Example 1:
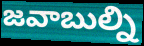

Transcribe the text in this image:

జవాబుల్ని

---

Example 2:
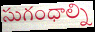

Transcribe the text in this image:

సుగంధాల్ని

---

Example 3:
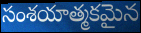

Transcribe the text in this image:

సంశయాత్మకమైన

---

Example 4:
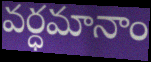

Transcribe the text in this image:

వర్ధమానాం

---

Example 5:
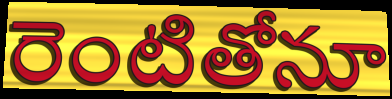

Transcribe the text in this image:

రెంటితోనూ